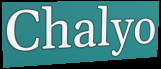
Chalyo